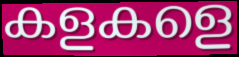
കളകളെ